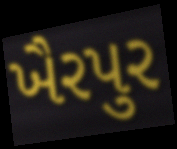
ખૈરપુર